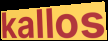
kallos